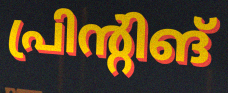
പ്രിന്റിങ്